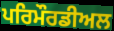
ਪਰਿਮੌਰਡੀਅਲ